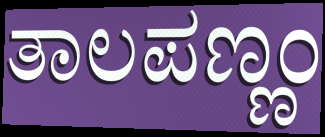
ತಾಲಪಣ್ಣಂ